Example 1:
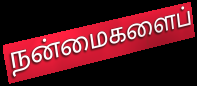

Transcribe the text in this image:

நன்மைகளைப்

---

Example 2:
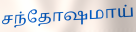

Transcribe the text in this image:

சந்தோஷமாய்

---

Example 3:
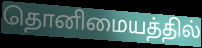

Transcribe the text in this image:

தொனிமையத்தில்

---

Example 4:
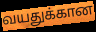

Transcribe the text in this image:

வயதுக்கான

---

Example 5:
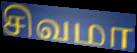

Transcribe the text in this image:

சிவமா